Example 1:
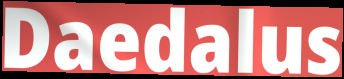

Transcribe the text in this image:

Daedalus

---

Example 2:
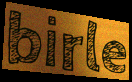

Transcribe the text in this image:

birle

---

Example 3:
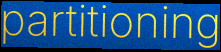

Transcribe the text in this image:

partitioning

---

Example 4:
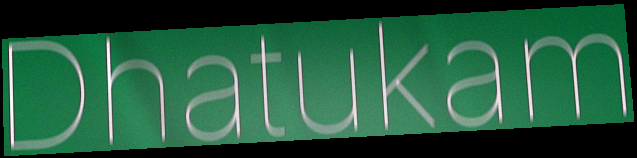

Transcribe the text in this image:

Dhatukam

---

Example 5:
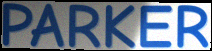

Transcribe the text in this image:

PARKER